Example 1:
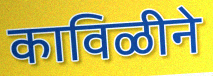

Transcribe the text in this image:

काविळीने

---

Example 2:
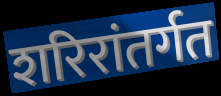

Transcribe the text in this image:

शरिरांतर्गत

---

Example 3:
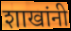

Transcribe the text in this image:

शाखांनी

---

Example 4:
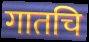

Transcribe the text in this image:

गातचि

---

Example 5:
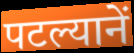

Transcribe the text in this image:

पटल्यानें